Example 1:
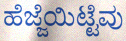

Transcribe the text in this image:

ಹೆಜ್ಜೆಯಿಟ್ಟೆವು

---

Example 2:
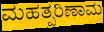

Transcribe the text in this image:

ಮಹತ್ಪರಿಣಾಮ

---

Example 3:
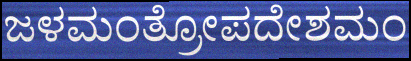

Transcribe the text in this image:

ಜಳಮಂತ್ರೋಪದೇಶಮಂ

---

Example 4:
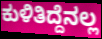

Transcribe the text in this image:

ಕುಳಿತಿದ್ದೆನಲ್ಲ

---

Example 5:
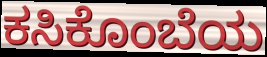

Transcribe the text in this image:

ಕಸಿಕೊಂಬೆಯ